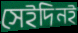
সেইদিনই